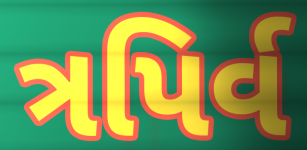
ત્રપિર્વ